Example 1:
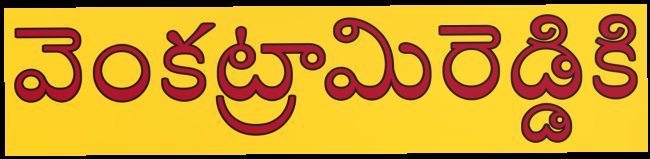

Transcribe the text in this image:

వెంకట్రామిరెడ్డికి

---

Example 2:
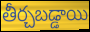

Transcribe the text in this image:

తీర్చబడ్డాయి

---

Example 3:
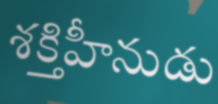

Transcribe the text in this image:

శక్తిహీనుడు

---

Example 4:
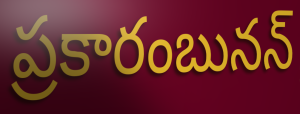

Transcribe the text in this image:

ప్రకారంబునన్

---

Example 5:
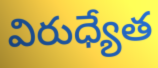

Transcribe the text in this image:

విరుధ్యేత